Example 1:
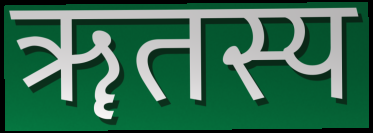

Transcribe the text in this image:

ॠतस्य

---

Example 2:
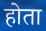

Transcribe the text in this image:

होता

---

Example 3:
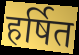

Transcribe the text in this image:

हर्षित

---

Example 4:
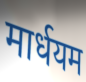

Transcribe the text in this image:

मार्धयम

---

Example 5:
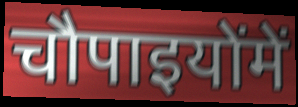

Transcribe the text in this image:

चौपाइयोंमें